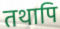
तथापि